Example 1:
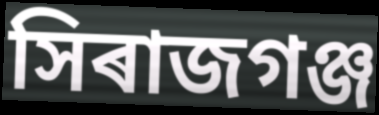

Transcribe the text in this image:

সিৰাজগঞ্জ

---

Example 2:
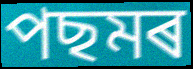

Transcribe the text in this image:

পছমৰ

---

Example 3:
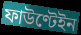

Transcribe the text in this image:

ফাউণ্টেইন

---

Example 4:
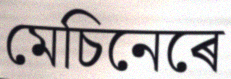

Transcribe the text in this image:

মেচিনেৰে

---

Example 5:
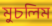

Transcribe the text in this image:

মুচলিম